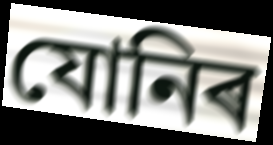
যোনিৰ